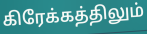
கிரேக்கத்திலும்